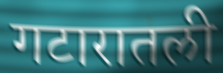
गटारातली